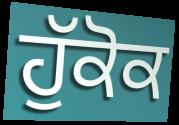
ਹੁੱਕੋਕ